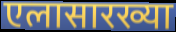
एलासारख्या